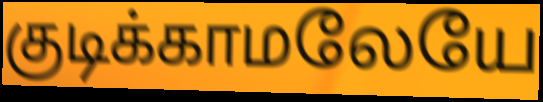
குடிக்காமலேயே